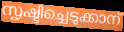
സൃഷ്ടിച്ചെടുക്കാന്